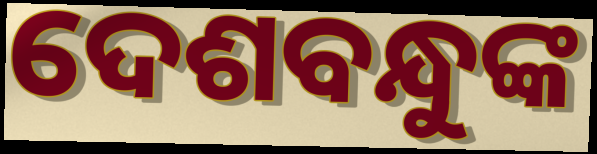
ଦେଶବନ୍ଧୁଙ୍କ